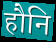
हौनि